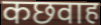
कछवाह